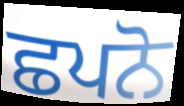
ਛਪਨੋ